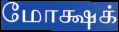
மோக்ஷக்